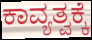
ಕಾವ್ಯತ್ವಕ್ಕೆ